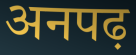
अनपढ़